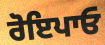
ਰੋਇਪਾਓ